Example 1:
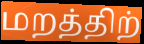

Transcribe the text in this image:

மறத்திற்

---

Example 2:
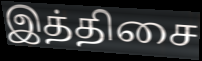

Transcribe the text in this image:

இத்திசை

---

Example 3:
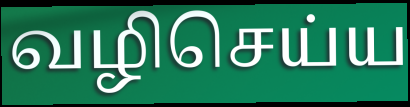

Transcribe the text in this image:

வழிசெய்ய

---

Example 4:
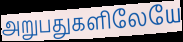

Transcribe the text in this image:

அறுபதுகளிலேயே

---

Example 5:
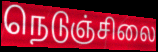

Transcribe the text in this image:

நெடுஞ்சிலை